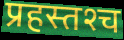
प्रहस्तश्च